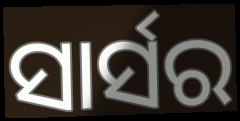
ସାର୍ସର